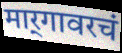
मार्गावरचं